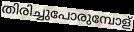
തിരിച്ചുപോരുമ്പോള്